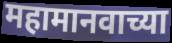
महामानवाच्या